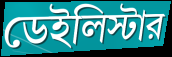
ডেইলিস্টার